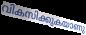
വികസിക്കുകയാണു